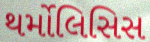
થર્મોલિસિસ